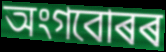
অংগবোৰৰ